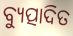
ବ୍ୟୁତ୍ପାଦିତ